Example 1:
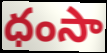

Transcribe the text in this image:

ధంసా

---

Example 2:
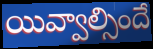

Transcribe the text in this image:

యివ్వాల్సిందే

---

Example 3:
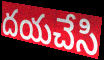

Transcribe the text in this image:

దయచేసి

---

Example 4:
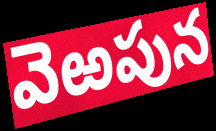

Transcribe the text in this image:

వెఱపున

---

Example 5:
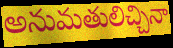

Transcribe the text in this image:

అనుమతులిచ్చినా